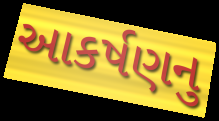
આકર્ષણનુ